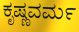
ಕೃಷ್ಣವರ್ಮ